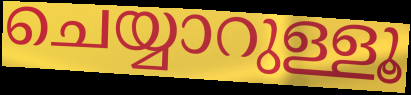
ചെയ്യാറുള്ളൂ